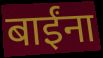
बाईंना